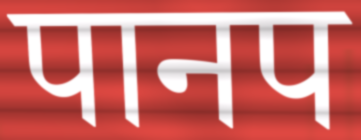
पानप